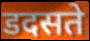
डदसते